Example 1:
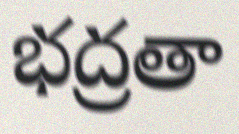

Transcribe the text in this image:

భద్రతా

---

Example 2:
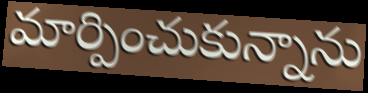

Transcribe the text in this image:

మార్పించుకున్నాను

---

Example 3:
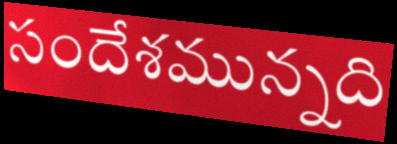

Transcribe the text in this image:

సందేశమున్నది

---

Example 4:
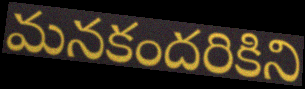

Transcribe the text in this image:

మనకందరికిని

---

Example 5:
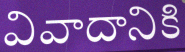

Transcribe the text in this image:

వివాదానికి